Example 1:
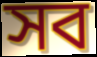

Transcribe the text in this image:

সব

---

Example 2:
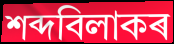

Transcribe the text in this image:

শব্দবিলাকৰ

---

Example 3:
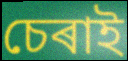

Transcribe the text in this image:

চেৰাই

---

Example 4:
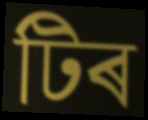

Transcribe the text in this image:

টিৰ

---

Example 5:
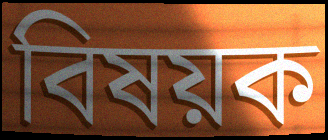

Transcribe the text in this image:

বিষয়ক